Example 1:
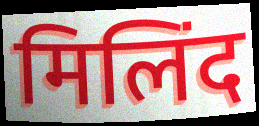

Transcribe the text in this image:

मिलिंद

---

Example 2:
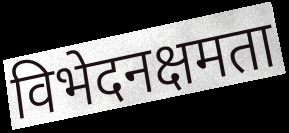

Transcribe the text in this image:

विभेदनक्षमता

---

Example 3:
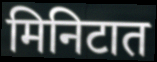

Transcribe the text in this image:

मिनिटात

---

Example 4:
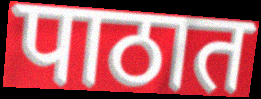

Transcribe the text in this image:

पाठात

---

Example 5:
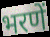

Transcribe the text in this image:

भरणें